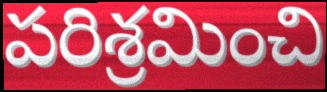
పరిశ్రమించి